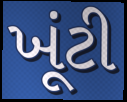
ખૂંટી